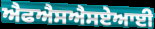
ਐਫਐਸਐਸਏਆਈ